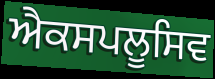
ਐਕਸਪਲੂਸਿਵ